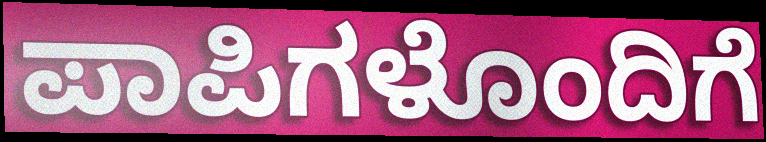
ಪಾಪಿಗಳೊಂದಿಗೆ